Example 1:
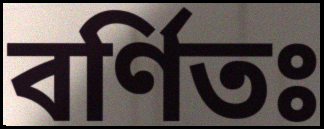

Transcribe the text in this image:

বর্ণিতঃ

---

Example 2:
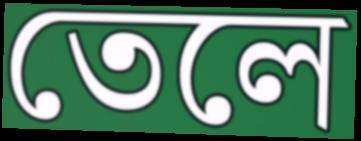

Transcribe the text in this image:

তেলে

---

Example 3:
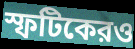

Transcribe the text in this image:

স্ফটিকেরও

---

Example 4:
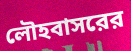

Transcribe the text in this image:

লৌহবাসরের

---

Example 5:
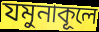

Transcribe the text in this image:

যমুনাকূলে